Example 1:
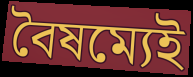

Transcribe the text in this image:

বৈষম্যেই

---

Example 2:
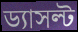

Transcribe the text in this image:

ড্যাসল্ট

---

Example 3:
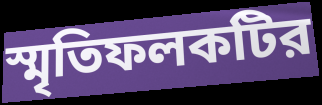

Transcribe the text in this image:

স্মৃতিফলকটির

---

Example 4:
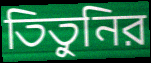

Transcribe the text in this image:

তিতুনির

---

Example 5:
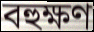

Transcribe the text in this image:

বহুক্ষণ